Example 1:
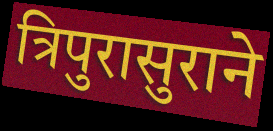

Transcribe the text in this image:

त्रिपुरासुराने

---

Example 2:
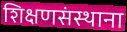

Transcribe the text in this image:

शिक्षणसंस्थाना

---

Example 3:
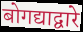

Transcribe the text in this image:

बोगद्याद्वारे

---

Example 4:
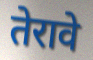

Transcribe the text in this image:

तेरावे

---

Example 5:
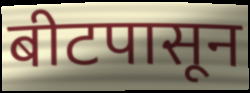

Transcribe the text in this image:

बीटपासून